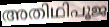
അതിഥിപൂജ